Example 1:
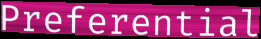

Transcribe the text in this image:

Preferential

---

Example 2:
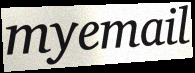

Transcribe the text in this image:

myemail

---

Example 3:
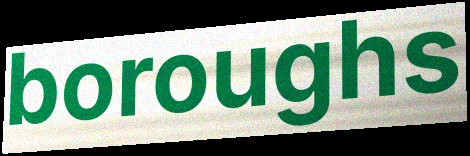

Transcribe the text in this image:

boroughs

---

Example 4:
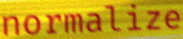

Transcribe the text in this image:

normalize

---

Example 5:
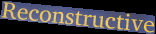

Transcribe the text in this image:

Reconstructive